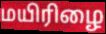
மயிரிழை